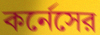
কর্নেসের